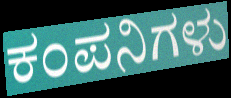
ಕಂಪನಿಗಳು